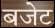
बजेट